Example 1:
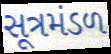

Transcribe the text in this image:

સૂત્રમંડળ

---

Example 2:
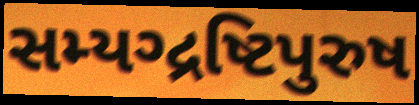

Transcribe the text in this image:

સમ્યગ્દ્રષ્ટિપુરુષ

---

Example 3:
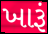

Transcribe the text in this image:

ખારૂં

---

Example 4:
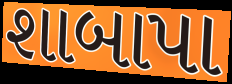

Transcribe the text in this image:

શાબાપા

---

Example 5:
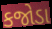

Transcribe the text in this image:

કજોડા